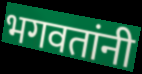
भगवतांनी